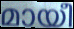
മായീ